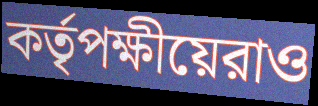
কর্তৃপক্ষীয়েরাও